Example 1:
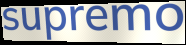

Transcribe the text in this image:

supremo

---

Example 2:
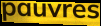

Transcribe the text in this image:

pauvres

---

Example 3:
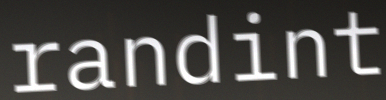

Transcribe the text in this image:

randint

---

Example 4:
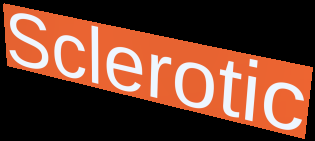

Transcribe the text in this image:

Sclerotic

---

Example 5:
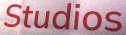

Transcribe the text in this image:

Studios